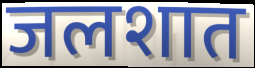
जलशात